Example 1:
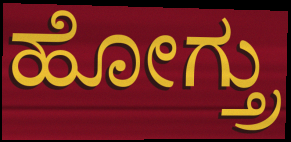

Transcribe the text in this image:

ಹೋಗ್ತ್ರು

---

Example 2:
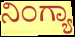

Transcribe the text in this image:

ನಿಂಗ್ಯಾ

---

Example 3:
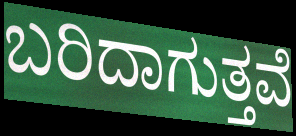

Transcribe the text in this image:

ಬರಿದಾಗುತ್ತವೆ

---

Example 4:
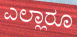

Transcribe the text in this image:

ಎಲ್ಲಾರೂ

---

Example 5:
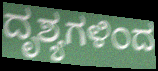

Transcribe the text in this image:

ದೃಶ್ಯಗಳಿಂದ